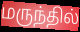
மருந்தில்